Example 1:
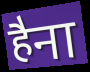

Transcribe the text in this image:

हैना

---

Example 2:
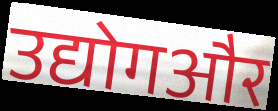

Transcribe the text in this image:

उद्योगऔर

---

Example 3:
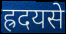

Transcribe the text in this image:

ह्रदयसे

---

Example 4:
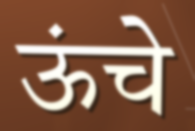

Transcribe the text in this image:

ऊंचे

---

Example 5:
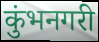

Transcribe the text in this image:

कुंभनगरी